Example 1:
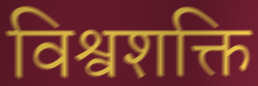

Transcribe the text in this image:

विश्वशक्ति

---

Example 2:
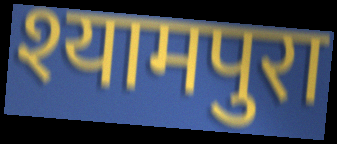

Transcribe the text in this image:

श्यामपुरा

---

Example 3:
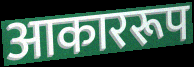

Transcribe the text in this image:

आकाररूप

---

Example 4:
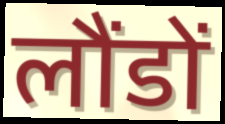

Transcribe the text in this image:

लौंडों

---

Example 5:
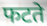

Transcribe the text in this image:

फटते